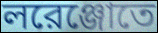
লরেঞ্জোতে